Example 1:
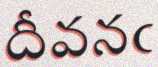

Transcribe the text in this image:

దీవనఁ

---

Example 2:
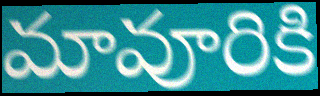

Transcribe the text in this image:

మావూరికి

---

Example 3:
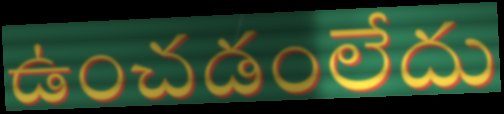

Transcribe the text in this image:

ఉంచడంలేదు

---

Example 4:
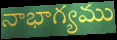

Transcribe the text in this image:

నాభాగ్యము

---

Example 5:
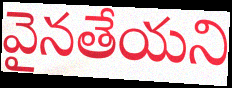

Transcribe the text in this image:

వైనతేయని